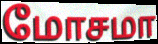
மோசமா